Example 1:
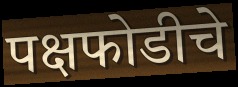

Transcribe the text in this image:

पक्षफोडीचे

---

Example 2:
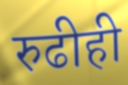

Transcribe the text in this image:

रुढीही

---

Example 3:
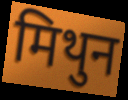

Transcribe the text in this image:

मिथुन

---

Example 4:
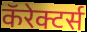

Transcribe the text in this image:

कॅरेक्टर्स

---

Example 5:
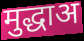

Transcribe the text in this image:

मुद्धाअ